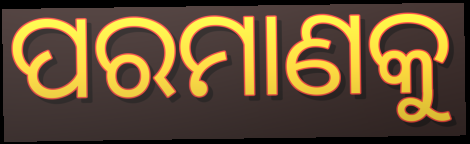
ପରମାଣକୁ